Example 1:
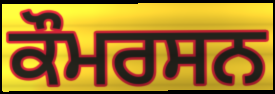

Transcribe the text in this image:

ਕੌਮਰਸਨ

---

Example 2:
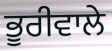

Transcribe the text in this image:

ਭੂਰੀਵਾਲੇ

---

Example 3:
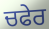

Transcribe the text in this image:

ਚਫੇਰ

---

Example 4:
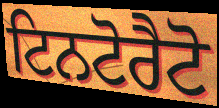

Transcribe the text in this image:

ਟਿਨਟੋਰੈਟੋ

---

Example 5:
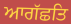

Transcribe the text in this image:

ਆਗੱਛਤਿ